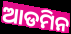
ଆଡମିନ